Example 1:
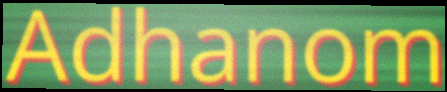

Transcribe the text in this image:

Adhanom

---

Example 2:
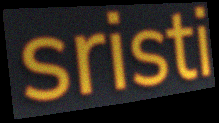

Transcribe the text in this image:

sristi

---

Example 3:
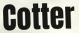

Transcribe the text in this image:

Cotter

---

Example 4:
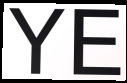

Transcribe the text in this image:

YE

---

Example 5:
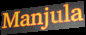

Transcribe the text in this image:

Manjula